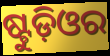
ଷ୍ଟୁଡ଼ିଓର